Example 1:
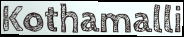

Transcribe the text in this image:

Kothamalli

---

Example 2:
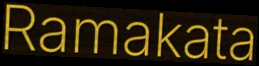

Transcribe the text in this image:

Ramakata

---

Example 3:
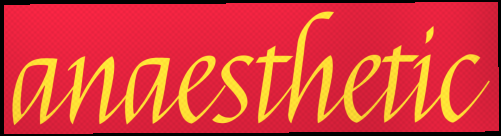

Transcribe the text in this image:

anaesthetic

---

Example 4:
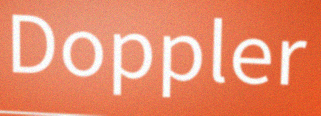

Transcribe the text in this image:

Doppler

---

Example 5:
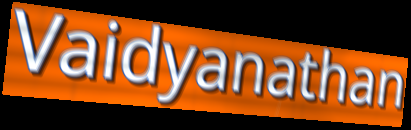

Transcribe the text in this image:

Vaidyanathan